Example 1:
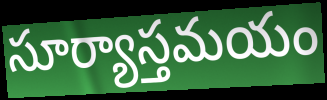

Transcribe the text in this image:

సూర్యాస్తమయం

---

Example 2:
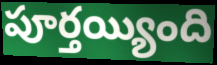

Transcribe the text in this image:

పూర్తయ్యింది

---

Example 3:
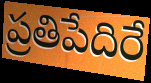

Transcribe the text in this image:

ప్రతిపేదిరే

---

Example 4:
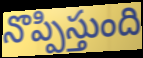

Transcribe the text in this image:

నొప్పిస్తుంది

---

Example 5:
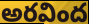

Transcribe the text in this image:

అరవింద